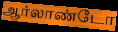
ஆர்லாண்டோ